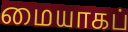
மையாகப்